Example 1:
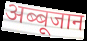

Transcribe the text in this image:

अब्बूजान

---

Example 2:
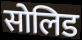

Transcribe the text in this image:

सोलिड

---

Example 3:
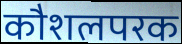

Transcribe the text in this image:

कौशलपरक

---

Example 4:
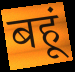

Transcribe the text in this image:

बहूं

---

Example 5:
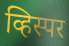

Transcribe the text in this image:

व्हिस्पर